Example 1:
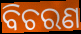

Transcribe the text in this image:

ବିଚରଣ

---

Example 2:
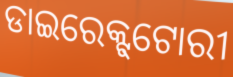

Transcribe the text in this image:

ଡାଇରେକ୍ଟ୍‌ଟୋରୀ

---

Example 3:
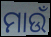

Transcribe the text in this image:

ମାଉଁ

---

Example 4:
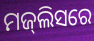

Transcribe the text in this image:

ମଜ୍‌ଲିସରେ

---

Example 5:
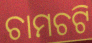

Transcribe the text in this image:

ଚାମଚଟି